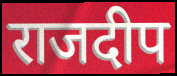
राजदीप